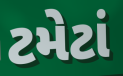
ટમેટાં